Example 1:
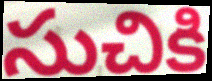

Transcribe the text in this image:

సుచికి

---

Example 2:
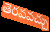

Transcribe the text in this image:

తెరవవచ్చు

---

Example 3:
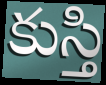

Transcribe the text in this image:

కుస్తి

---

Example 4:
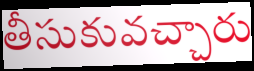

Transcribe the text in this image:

తీసుకువచ్చారు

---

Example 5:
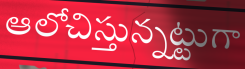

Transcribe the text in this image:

ఆలోచిస్తున్నట్టుగా